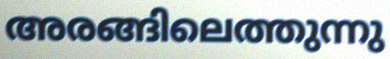
അരങ്ങിലെത്തുന്നു